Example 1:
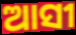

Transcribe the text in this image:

ଆସୀ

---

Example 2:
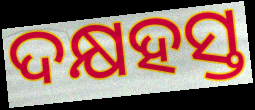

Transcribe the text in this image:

ଦକ୍ଷହସ୍ତ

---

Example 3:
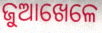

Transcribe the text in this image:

ଜୁଆଖେଳେ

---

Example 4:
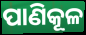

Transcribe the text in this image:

ପାଣିକୂଳ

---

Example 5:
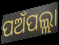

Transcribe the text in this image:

ପଅଁପଲ୍ଲା